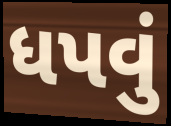
ધપવું